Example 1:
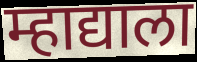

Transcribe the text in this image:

म्हाद्याला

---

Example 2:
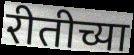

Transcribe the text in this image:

रीतीच्या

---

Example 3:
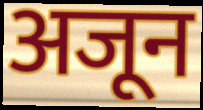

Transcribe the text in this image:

अजून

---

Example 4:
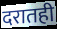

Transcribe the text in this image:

दरातही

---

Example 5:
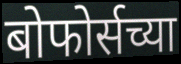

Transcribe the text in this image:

बोफोर्सच्या